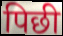
पिछी